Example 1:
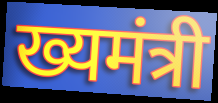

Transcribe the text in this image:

ख्यमंत्री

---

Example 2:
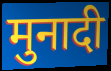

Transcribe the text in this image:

मुनादी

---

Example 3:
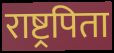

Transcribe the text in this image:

राष्ट्रपिता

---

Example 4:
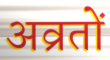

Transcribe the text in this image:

अव्रतों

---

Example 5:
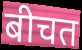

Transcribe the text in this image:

बीचत